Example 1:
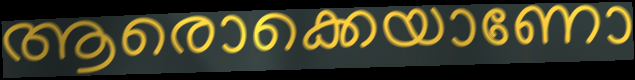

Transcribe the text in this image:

ആരൊക്കെയാണോ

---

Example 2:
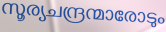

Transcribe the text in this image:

സൂര്യചന്ദ്രന്മാരോടും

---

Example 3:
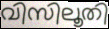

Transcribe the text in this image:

വിസിലൂതി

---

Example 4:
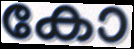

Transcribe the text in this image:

കോ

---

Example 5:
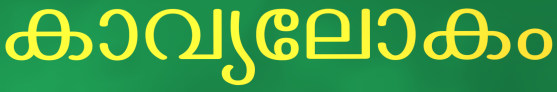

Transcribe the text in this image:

കാവ്യലോകം